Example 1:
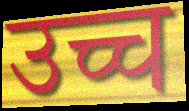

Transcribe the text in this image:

उच्‍च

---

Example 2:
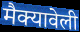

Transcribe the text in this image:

मैक्यावेली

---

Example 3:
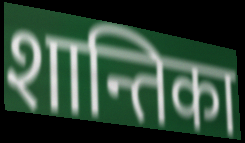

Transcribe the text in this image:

शान्तिका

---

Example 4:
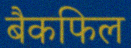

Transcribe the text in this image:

बैकफिल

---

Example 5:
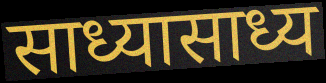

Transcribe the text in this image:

साध्यासाध्य